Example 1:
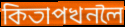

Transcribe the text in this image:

কিতাপখনলৈ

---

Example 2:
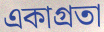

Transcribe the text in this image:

একাগ্ৰতা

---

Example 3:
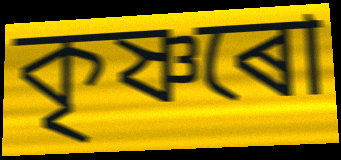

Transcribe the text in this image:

কৃষ্ণৰো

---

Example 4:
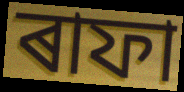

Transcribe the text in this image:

ৰাফা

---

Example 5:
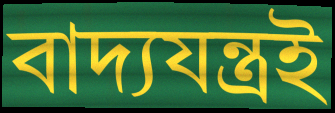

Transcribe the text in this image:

বাদ্যযন্ত্ৰই